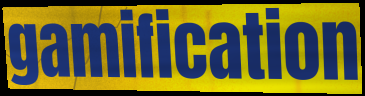
gamification